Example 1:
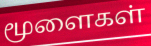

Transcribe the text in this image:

மூளைகள்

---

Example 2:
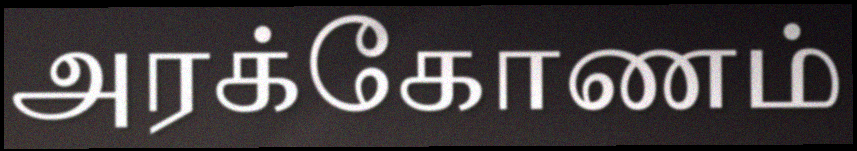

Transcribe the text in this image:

அரக்கோணம்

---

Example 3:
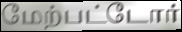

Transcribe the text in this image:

மேற்பட்டோர்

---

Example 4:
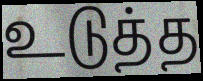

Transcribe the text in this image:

உடுத்த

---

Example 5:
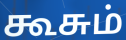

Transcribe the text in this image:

கூசும்